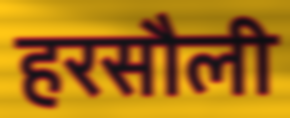
हरसौली